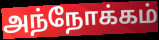
அந்நோக்கம்